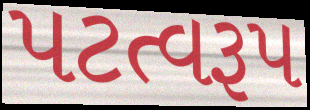
પટત્વરૂપ